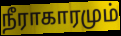
நீராகாரமும்